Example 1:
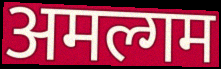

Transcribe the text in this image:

अमल्गम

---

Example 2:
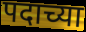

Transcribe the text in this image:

पदाच्या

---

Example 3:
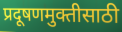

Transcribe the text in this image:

प्रदूषणमुक्तीसाठी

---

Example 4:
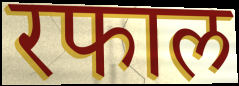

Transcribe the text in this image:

रफाल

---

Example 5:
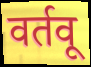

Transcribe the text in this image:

वर्तवू